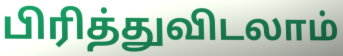
பிரித்துவிடலாம்